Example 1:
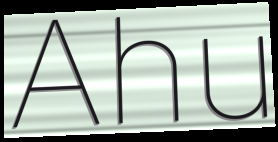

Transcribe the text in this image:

Ahu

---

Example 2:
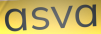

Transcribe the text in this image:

asva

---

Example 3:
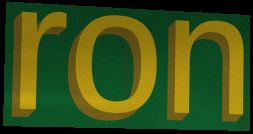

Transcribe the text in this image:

ron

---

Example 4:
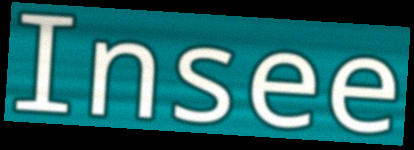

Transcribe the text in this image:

Insee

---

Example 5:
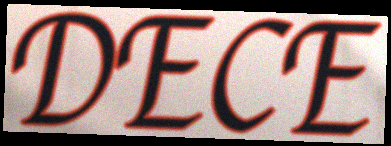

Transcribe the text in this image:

DECE